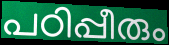
പഠിപ്പീരും